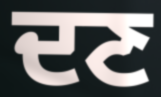
ਦਣ